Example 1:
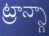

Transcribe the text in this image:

ట్రాన్స్గా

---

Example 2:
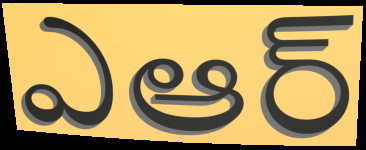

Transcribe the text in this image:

ఎఆర్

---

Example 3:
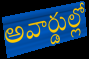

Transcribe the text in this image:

అవార్డుల్లో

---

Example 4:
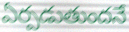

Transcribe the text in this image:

ఏర్పడుతుందనే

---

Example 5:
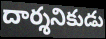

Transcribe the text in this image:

దార్శనికుడు